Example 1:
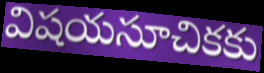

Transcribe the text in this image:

విషయసూచికకు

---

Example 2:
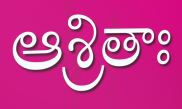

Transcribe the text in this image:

ఆశ్రితాః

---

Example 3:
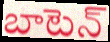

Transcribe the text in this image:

బాటెన్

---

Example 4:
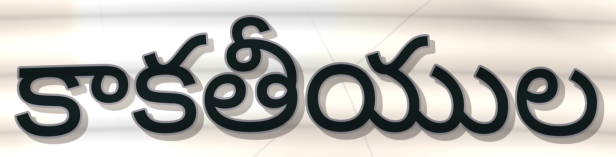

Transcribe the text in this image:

కాకతీయుల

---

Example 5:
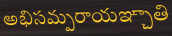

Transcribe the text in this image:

అభిసమ్పరాయఞ్చాతి